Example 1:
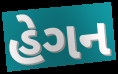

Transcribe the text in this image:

હેગન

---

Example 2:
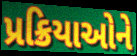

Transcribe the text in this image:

પ્રક્રિયાઓને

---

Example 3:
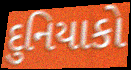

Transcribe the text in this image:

દુનિયાકો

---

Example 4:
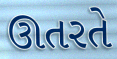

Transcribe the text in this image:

ઊતરતે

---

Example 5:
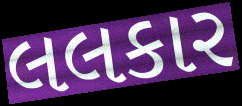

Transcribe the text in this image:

લલકાર